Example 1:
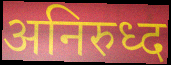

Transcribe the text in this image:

अनिरुध्द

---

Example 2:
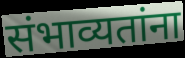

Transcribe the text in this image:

संभाव्यतांना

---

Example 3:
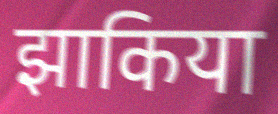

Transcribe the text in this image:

झाकिया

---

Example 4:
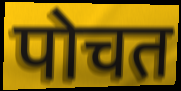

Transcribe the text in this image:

पोचत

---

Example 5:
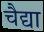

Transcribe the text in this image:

चैद्या